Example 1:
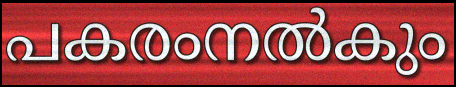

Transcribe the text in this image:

പകരംനൽകും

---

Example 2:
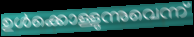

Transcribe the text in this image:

ഉൾക്കൊള്ളുന്നുവെന്ന്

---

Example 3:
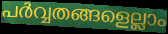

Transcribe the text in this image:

പർവ്വതങ്ങളെല്ലാം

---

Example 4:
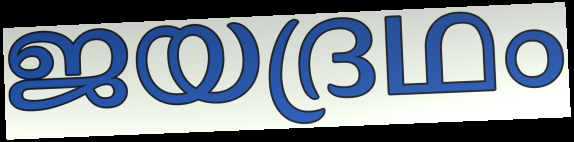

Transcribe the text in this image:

ജയദ്രഥം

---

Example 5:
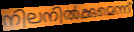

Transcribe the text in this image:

നിലനിൽക്കുമെന്ന്